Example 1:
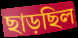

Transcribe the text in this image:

ছাড়ছিল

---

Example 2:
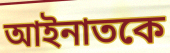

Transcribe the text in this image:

আইনাতকে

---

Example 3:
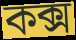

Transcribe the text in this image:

কক্স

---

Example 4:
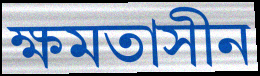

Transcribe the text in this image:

ক্ষমতাসীন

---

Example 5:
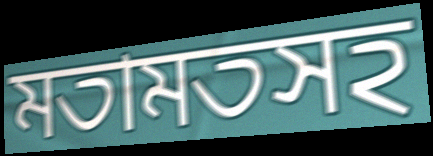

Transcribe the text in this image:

মতামতসহ